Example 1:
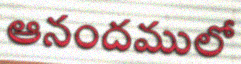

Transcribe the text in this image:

ఆనందములో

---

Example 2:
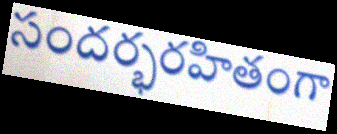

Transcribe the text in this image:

సందర్భరహితంగా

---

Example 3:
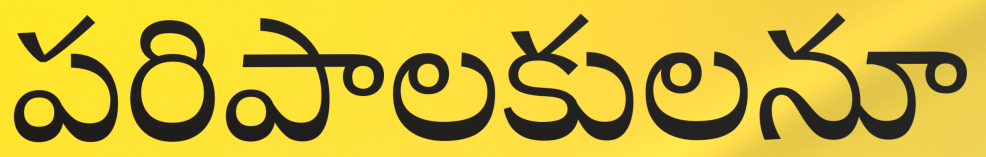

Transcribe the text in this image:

పరిపాలకులనూ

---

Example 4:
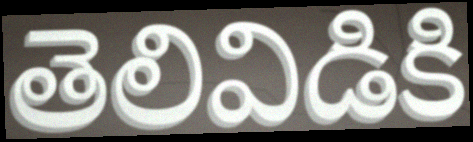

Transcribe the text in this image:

తెలివిడికి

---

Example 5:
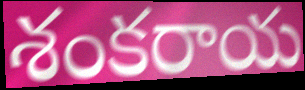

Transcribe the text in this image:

శంకరాయ